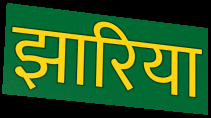
झारिया